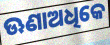
ଊଣାଅଧିକେ